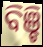
ବିଞ୍ଚି